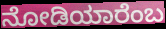
ನೋಡಿಯಾರೆಂಬ